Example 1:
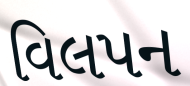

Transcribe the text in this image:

વિલપન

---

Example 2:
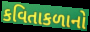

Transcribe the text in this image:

કવિતાકળાનો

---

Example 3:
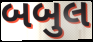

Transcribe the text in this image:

બબુલ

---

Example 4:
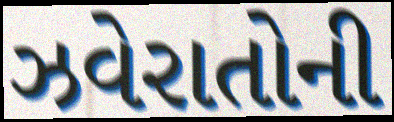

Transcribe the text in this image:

ઝવેરાતોની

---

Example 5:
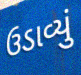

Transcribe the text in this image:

ઉડાવ્યું